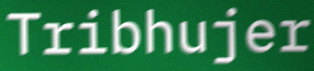
Tribhujer